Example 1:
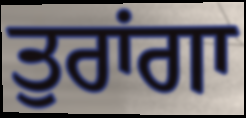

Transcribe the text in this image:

ਤੁਰਾਂਗਾ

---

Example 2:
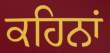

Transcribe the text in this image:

ਕਹਿਨਾਂ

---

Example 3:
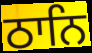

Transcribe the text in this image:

ਠਾਨਿ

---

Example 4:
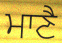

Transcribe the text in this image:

ਮਾਣੈ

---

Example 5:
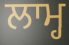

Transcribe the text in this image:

ਲਾਮ੍ਹ